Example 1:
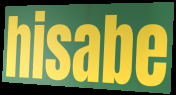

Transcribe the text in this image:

hisabe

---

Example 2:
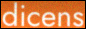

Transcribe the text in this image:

dicens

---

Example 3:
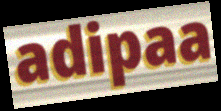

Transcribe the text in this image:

adipaa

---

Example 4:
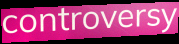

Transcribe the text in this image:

controversy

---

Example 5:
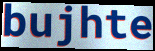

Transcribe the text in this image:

bujhte